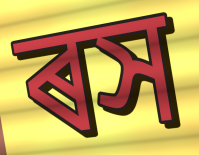
ৰস